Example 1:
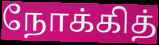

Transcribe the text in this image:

நோக்கித்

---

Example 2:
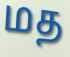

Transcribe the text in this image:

மத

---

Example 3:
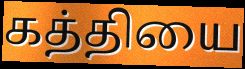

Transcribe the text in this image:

கத்தியை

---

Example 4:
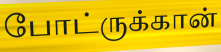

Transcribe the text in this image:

போட்ருக்கான்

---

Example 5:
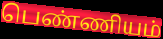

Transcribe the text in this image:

பெண்ணியம்